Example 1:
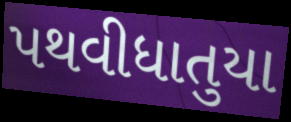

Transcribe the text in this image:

પથવીધાતુયા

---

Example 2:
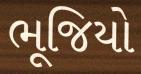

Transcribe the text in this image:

ભૂજિયો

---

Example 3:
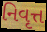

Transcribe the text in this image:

નિવૃત્ત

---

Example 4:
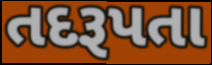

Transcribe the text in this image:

તદરૂપતા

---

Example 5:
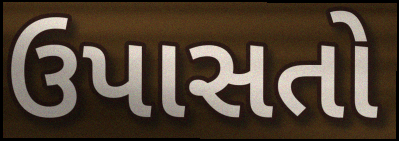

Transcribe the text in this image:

ઉપાસતો